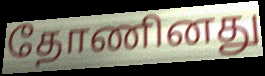
தோணினது